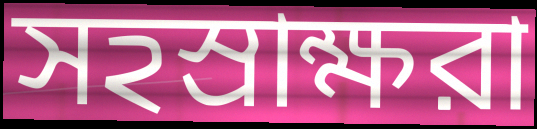
সহস্রাক্ষরা